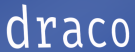
draco